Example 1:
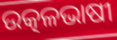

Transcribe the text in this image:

ଉତ୍କଳଭାଷୀ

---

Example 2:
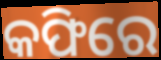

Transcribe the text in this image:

କଫିରେ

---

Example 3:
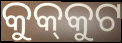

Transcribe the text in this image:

କୁକ୍‍କୁଟ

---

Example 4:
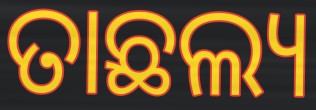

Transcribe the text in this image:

ତାଛଲ୍ୟ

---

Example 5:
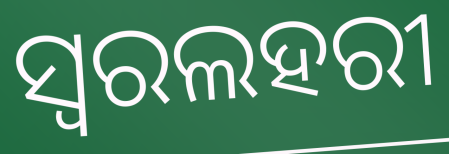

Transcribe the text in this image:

ସ୍ୱରଲହରୀ